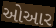
ઓઆર